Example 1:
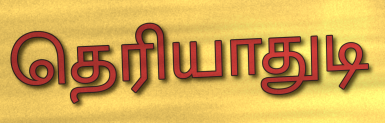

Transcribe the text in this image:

தெரியாதுடி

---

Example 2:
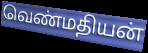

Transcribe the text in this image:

வெண்மதியன்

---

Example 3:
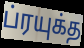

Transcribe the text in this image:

ப்ரயுக்த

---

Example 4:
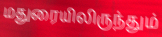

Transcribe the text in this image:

மதுரையிலிருந்தும்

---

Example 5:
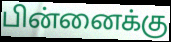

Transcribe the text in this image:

பின்னைக்கு